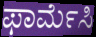
ಫಾರ್ಮೆಸಿ